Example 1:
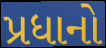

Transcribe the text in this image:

પ્રધાનો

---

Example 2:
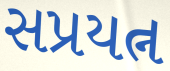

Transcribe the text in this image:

સપ્રયત્ન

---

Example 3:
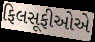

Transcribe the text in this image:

ફિલસૂફીઓએ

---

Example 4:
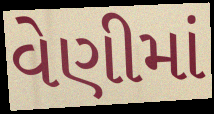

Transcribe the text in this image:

વેણીમાં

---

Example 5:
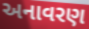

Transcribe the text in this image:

અનાવરણ